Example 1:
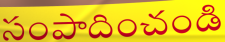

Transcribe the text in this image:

సంపాదించండి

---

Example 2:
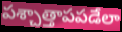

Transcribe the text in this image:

పశ్చాత్తాపపడేలా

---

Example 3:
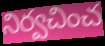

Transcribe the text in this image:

నిర్వచించ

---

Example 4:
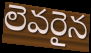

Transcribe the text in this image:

లెవరైన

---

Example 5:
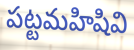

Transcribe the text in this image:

పట్టమహిషివి